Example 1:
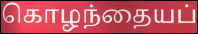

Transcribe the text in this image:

கொழந்தையப்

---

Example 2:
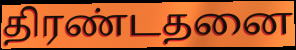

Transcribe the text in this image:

திரண்டதனை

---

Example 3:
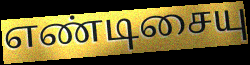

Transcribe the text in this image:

எண்டிசையு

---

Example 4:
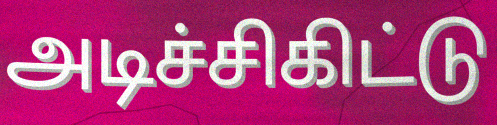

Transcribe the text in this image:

அடிச்சிகிட்டு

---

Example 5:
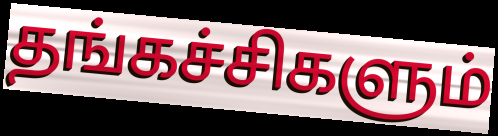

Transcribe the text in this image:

தங்கச்சிகளும்